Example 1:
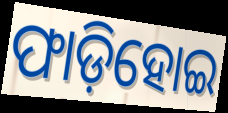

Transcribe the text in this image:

ଫାଡ଼ିହୋଇ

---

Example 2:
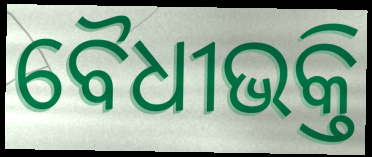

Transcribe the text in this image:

ବୈଧୀଭକ୍ତି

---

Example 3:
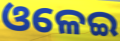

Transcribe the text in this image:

ଓଳେଇ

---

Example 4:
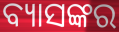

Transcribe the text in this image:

ବ୍ୟାସଙ୍କର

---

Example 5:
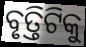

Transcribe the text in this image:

ବୃତ୍ତିଟିକୁ